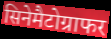
सिनेमैटोग्राफर